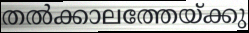
തൽക്കാലത്തേയ്ക്കു